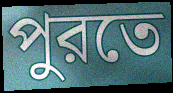
পুরতে